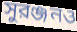
সুরঞ্জনও